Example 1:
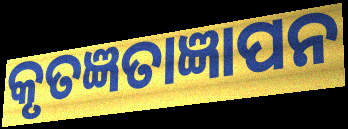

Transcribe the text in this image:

କୃତଜ୍ଞତାଜ୍ଞାପନ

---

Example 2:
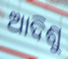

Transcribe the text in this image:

ଆଦିଶୁ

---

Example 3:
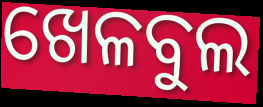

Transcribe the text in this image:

ଖେଳବୁଲ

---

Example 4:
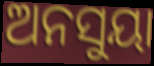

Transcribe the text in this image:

ଅନସୁୟା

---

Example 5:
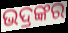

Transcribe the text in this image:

ଭଦ୍ରଙ୍କର